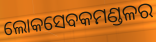
ଲୋକସେବକମଣ୍ଡଳର